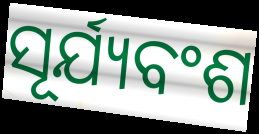
ସୂର୍ଯ୍ୟବଂଶ